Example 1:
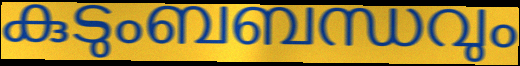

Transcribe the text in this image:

കുടുംബബന്ധവും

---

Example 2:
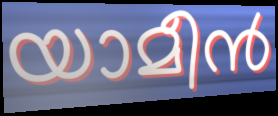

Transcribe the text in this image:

യാമീൻ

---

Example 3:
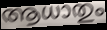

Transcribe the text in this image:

ആധാതും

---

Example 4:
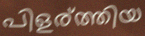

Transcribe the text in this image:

പിളര്ത്തിയ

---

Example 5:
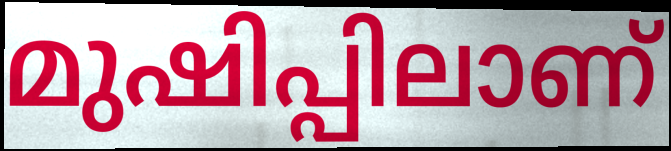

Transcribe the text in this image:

മുഷിപ്പിലാണ്